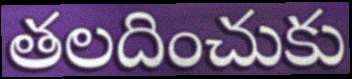
తలదించుకు